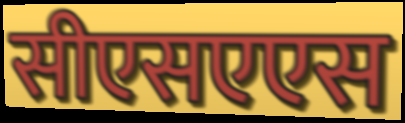
सीएसएएस